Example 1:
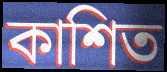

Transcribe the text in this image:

কাশিত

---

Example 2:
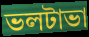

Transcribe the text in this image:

ভলটাভা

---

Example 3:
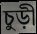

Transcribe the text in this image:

চুড়ী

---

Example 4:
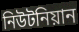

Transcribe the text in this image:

নিউটনিয়ান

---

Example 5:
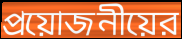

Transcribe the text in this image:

প্রয়োজনীয়ের